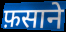
फ़साने